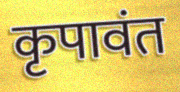
कृपावंत